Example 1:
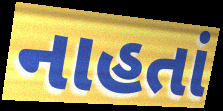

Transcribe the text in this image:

નાહતાં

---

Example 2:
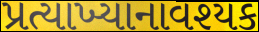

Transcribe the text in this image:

પ્રત્યાખ્યાનાવશ્યક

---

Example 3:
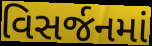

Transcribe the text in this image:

વિસર્જનમાં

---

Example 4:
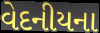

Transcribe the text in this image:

વેદનીયના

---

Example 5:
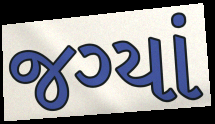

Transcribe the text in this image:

જગ્યાં